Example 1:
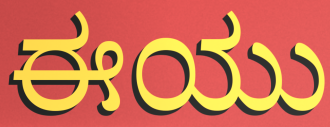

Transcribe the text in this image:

ಈಯು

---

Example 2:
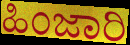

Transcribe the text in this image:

ಹಿಂಜಾರಿ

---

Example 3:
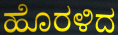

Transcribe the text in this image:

ಹೊರಳಿದ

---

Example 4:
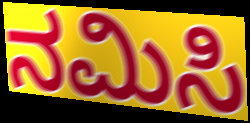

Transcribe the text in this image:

ನಮಿಸಿ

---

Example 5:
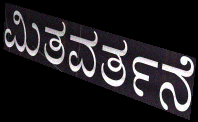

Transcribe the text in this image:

ಮಿತವರ್ತನೆ